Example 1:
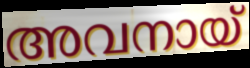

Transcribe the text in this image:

അവനായ്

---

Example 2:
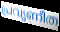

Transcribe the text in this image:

പ്രവൃണീത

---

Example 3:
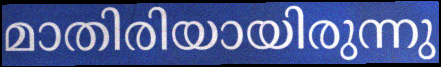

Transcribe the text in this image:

മാതിരിയായിരുന്നു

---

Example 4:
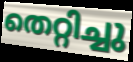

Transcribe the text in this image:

തെറ്റിച്ചു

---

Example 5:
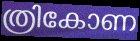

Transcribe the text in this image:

ത്രികോണ